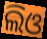
ଲିଓ